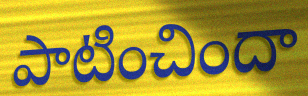
పాటించిందా